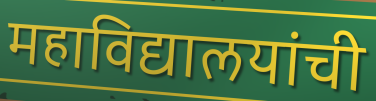
महाविद्यालयांची